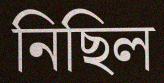
নিছিল